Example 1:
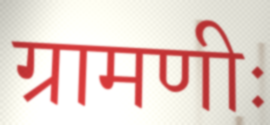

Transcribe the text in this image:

ग्रामणीः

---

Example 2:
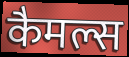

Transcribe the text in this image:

कैमल्स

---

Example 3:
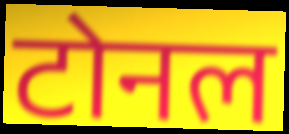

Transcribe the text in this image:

टोनल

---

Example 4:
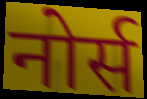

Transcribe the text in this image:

नोर्स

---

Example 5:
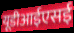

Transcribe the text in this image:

यूडीआईएसई